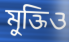
মুক্তিও